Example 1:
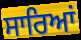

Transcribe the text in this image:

ਸਾਰਿਆਂ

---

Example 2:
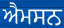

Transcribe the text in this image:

ਐਮਸਨ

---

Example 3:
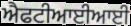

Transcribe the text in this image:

ਐਫਟੀਆਈਆਈ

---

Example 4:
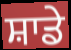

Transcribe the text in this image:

ਸ਼ਾਡੇ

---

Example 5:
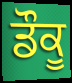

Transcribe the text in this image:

ਡੌਕੂ